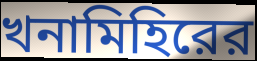
খনামিহিরের